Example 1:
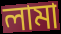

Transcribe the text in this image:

লামা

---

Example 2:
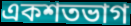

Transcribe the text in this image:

একশতভাগ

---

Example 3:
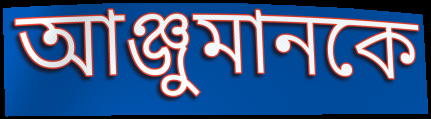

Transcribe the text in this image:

আঞ্জুমানকে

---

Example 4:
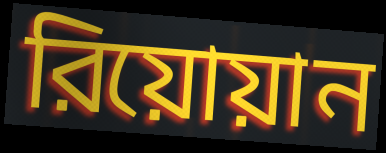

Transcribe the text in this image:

রিয়োয়ান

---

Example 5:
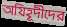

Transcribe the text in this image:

অযিহূদীদের